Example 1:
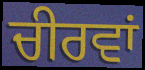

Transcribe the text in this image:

ਚੀਰਵਾਂ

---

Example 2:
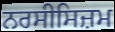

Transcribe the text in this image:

ਨਰਸੀਸਿਜ਼ਮ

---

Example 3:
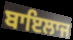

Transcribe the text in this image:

ਬਾਇਲਾਜ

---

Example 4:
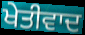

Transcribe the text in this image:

ਖੇਤੀਵਾਦ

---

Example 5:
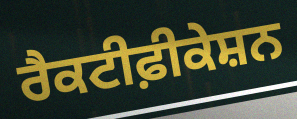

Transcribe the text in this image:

ਰੈਕਟੀਫ਼ੀਕੇਸ਼ਨ